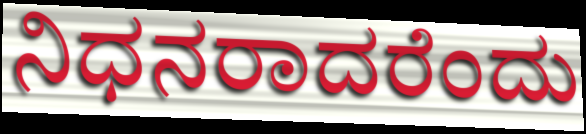
ನಿಧನರಾದರೆಂದು